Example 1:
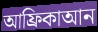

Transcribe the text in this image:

আফ্রিকাআন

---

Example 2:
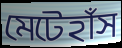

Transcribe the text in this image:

মেটেহাঁস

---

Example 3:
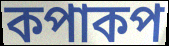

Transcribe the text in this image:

কপাকপ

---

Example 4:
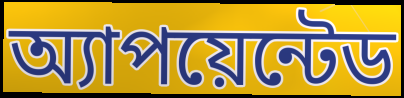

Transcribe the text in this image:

অ্যাপয়েন্টেড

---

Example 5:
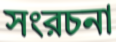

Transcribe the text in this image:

সংরচনা